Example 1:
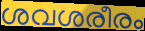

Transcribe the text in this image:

ശവശരീരം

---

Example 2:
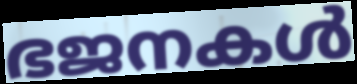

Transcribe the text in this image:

ഭജനകൾ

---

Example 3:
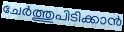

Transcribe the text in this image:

ചേർത്തുപിടിക്കാൻ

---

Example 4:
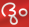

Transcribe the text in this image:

ദും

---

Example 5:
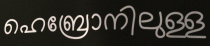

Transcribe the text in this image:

ഹെബ്രോനിലുള്ള